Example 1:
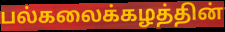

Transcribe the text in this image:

பல்கலைக்கழத்தின்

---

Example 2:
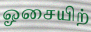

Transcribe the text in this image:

ஓசையிற்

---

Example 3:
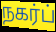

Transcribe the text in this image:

நகர்ப்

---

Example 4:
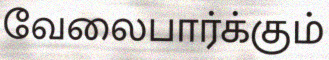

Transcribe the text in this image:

வேலைபார்க்கும்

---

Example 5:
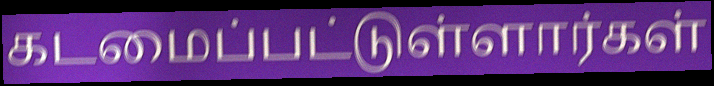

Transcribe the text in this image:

கடமைப்பட்டுள்ளார்கள்